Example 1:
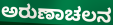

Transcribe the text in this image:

ಅರುಣಾಚಲನ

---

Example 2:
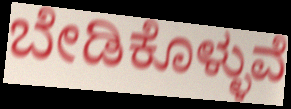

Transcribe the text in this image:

ಬೇಡಿಕೊಳ್ಳುವೆ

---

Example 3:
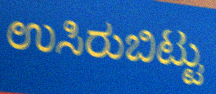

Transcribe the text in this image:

ಉಸಿರುಬಿಟ್ಟು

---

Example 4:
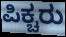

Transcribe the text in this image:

ಪಿಕ್ಚರು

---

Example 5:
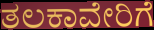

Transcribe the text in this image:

ತಲಕಾವೇರಿಗೆ